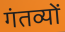
गंतव्यों